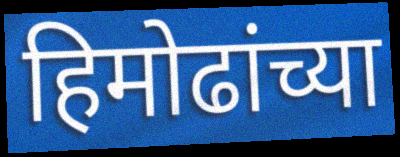
हिमोढांच्या